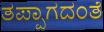
ತಪ್ಪಾಗದಂತೆ